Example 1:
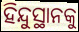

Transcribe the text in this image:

ହିନ୍ଦୁସ୍ଥାନକୁ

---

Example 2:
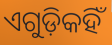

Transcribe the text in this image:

ଏଗୁଡ଼ିକହିଁ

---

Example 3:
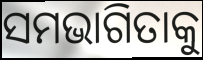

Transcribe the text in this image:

ସମଭାଗିତାକୁ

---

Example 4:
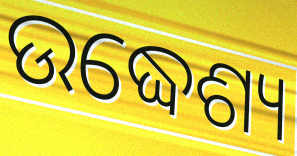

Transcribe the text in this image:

ଉଦ୍ଧେଶ୍ୟ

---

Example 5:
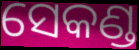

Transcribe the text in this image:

ସେକଣ୍ଡ